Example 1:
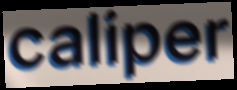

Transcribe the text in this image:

caliper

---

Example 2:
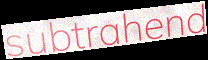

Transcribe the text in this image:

subtrahend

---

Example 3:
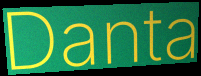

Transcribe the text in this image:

Danta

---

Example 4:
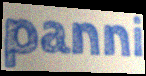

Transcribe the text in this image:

panni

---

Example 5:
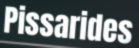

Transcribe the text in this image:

Pissarides